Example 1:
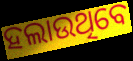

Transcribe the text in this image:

ହଲାଉଥିବେ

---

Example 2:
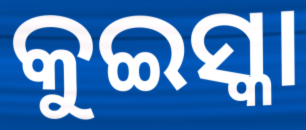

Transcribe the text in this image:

କୁଇସ୍କା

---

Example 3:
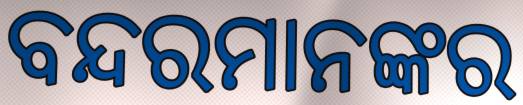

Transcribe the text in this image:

ବନ୍ଦରମାନଙ୍କର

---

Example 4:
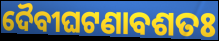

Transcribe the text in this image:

ଦୈବୀଘଟଣାବଶତଃ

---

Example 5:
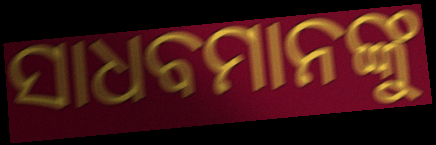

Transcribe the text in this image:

ସାଧବମାନଙ୍କୁ